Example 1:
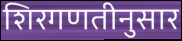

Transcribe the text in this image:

शिरगणतीनुसार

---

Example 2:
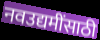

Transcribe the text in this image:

नवउद्यमींसाठी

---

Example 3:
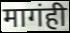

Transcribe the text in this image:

मागंही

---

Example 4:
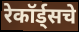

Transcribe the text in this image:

रेकॉर्ड्सचे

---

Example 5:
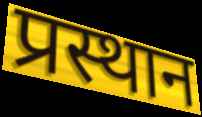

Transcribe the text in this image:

प्रस्थान